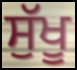
ਸੁੱਖੂ